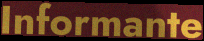
Informante